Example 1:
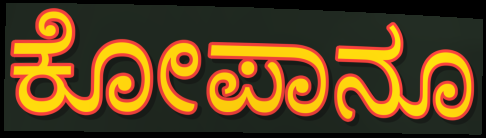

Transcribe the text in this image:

ಕೋಪಾನೂ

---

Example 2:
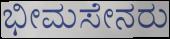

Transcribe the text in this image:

ಭೀಮಸೇನರು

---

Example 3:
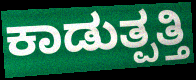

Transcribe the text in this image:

ಕಾಡುತ್ಪತ್ತಿ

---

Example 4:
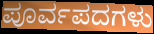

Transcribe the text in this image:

ಪೂರ್ವಪದಗಳು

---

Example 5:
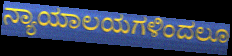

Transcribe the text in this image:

ನ್ಯಾಯಾಲಯಗಳಿಂದಲೂ